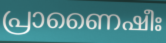
പ്രാണൈഷീഃ